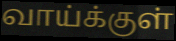
வாய்க்குள்